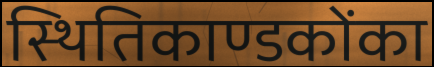
स्थितिकाण्डकोंका